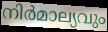
നിർമാല്യവും